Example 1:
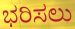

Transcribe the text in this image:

ಭರಿಸಲು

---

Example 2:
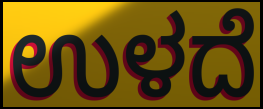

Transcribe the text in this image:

ಉಳದೆ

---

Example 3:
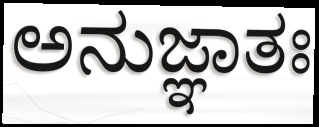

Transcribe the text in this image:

ಅನುಜ್ಞಾತಃ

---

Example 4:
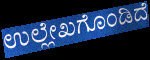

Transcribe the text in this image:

ಉಲ್ಲೇಖಗೊಂಡಿದೆ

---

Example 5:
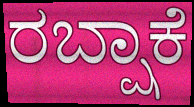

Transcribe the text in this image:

ರಬ್ಷಾಕೆ